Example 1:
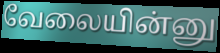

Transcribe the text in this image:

வேலையின்னு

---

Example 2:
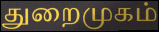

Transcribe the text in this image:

துறைமுகம்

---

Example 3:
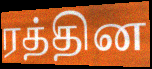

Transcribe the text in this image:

ரத்தின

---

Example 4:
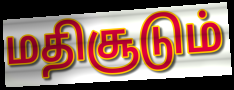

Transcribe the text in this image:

மதிசூடும்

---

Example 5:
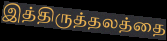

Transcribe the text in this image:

இத்திருத்தலத்தை